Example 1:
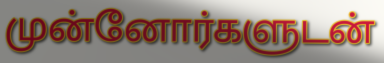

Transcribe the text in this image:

முன்னோர்களுடன்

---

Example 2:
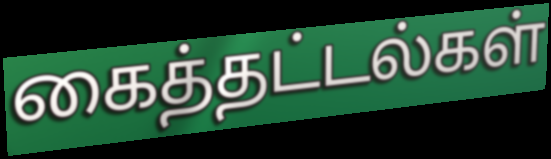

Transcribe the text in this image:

கைத்தட்டல்கள்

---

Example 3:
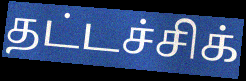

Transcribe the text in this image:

தட்டச்சிக்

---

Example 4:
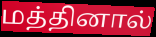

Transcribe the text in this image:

மத்தினால்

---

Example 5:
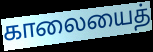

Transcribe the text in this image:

காலையைத்